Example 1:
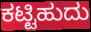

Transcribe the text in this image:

ಕಟ್ಟಿಹುದು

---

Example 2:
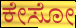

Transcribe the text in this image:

ಕೇಸೋ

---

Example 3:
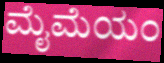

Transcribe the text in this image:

ಮೈಮೆಯಂ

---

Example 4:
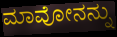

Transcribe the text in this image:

ಮಾವೋನನ್ನು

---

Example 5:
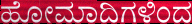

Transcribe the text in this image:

ಹೋಮಾದಿಗಳಿಂದ